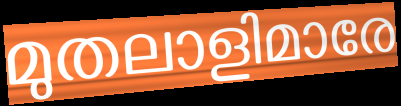
മുതലാളിമാരേ